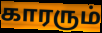
காரரும்